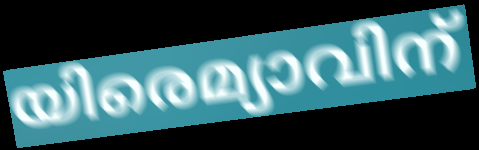
യിരെമ്യാവിന്